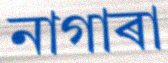
নাগাৰা